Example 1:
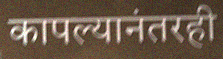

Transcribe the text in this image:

कापल्यानंतरही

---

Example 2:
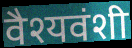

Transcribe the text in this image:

वैश्यवंशी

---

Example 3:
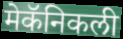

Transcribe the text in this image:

मेकॅनिकली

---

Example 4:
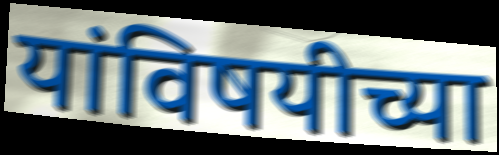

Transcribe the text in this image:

यांविषयीच्या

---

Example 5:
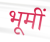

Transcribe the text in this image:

भूमीं